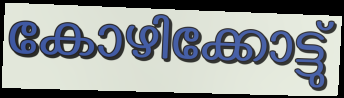
കോഴിക്കോട്ടു്